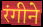
रंगीने